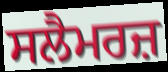
ਸਲੈਮਰਜ਼